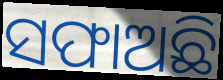
ସଫାଅଛି